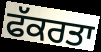
ਫੱਕਰਤਾ